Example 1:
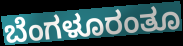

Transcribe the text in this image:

ಬೆಂಗಳೂರಂತೂ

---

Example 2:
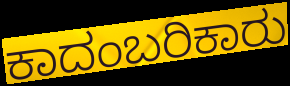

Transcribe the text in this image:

ಕಾದಂಬರಿಕಾರು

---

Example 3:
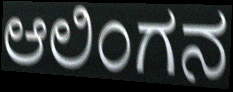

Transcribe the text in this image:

ಆಲಿಂಗನ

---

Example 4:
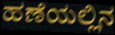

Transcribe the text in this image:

ಹಣೆಯಲ್ಲಿನ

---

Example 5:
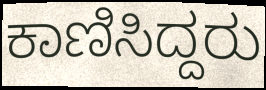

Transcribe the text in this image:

ಕಾಣಿಸಿದ್ದರು